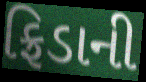
ફ્રિડાની